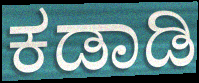
ಕಡಾಡಿ